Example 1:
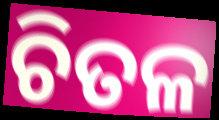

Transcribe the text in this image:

ଚିତଳ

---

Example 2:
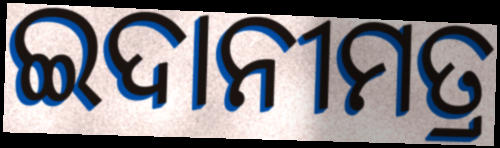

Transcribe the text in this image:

ଇଦାନୀମତ୍ର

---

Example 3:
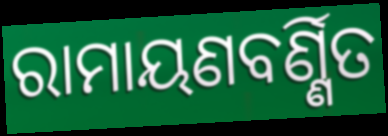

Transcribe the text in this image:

ରାମାୟଣବର୍ଣ୍ଣିତ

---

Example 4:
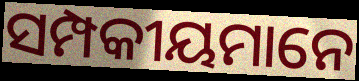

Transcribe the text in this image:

ସମ୍ପକୀୟମାନେ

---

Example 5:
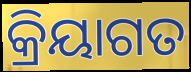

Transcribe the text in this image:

କ୍ରିୟାଗତ